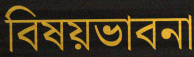
বিষয়ভাবনা